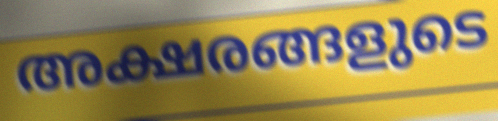
അക്ഷരങ്ങളുടെ